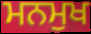
ਮਨਮੁਖ